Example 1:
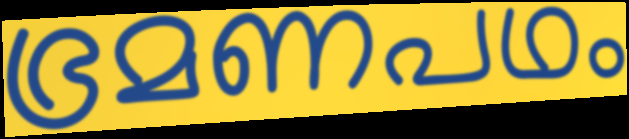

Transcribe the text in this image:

ഭ്രമണപഥം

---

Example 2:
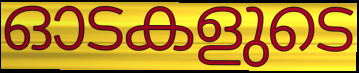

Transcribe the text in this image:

ഓടകളുടെ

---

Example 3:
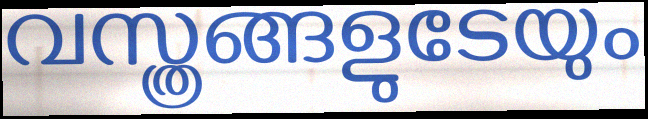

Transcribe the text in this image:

വസ്ത്രങ്ങളുടേയും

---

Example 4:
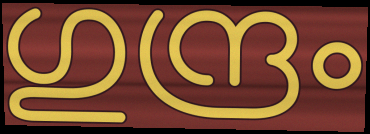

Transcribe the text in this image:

ഗുന്ദ്രം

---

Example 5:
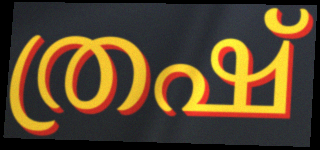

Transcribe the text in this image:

ത്രഷ്